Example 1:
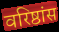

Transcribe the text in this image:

वरिष्ठांस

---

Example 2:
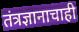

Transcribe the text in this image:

तंत्रज्ञानाचाही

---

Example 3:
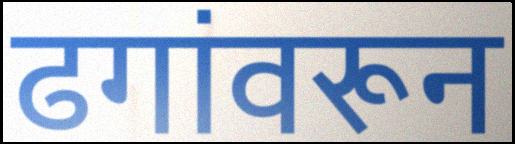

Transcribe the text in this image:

ढगांवरून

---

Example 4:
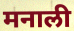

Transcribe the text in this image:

मनाली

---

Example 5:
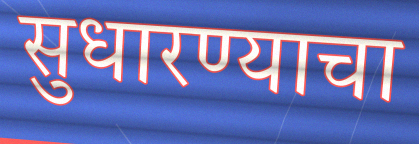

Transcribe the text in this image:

सुधारण्याचा